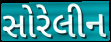
સોરેલીન